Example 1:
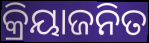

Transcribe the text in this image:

କ୍ରିୟାଜନିତ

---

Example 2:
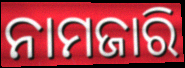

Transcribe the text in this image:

ନାମଜାରି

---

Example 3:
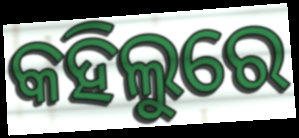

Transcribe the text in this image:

କହିଲୁରେ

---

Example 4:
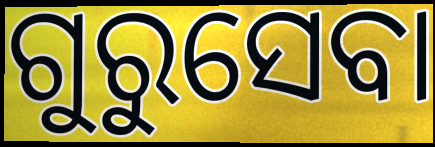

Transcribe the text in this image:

ଗୁରୁସେବା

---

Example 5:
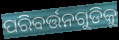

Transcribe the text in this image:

ପରିବର୍ତ୍ତନଗୁଡିକୁ